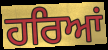
ਹਰਿਆਂ